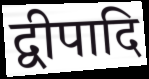
द्वीपादि